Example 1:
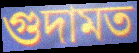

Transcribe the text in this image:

গুদামত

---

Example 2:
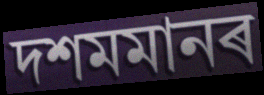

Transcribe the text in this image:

দশমমানৰ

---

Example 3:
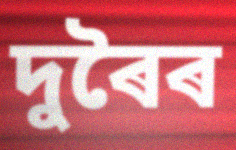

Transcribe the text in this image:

দুৰৈৰ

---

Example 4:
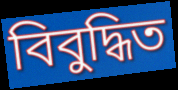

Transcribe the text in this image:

বিবুদ্ধিত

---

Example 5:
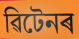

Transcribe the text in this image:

ৱিটেনৰ